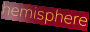
hemisphere